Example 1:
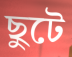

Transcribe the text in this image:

ছুটে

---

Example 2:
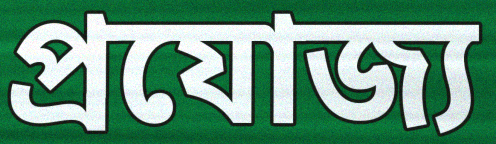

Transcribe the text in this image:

প্রযোজ্য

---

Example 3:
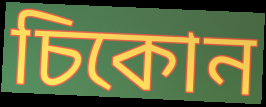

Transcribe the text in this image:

চিকোন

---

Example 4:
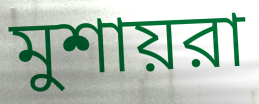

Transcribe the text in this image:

মুশায়রা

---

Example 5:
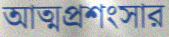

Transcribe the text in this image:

আত্মপ্রশংসার